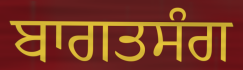
ਬਾਗਤਸੰਗ